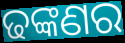
ଢଙ୍କଣର